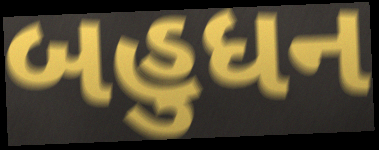
બહુધન